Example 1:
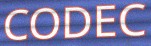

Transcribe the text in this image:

CODEC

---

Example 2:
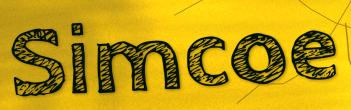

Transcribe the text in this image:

Simcoe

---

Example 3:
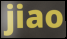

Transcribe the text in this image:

jiao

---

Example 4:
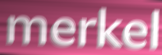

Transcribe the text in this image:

merkel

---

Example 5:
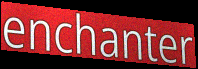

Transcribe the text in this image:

enchanter